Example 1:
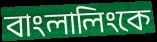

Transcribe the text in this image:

বাংলালিংকে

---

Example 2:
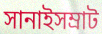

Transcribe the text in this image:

সানাইসম্রাট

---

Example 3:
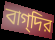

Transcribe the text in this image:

বাগ্‌দির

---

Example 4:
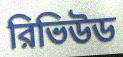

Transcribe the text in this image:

রিভিউড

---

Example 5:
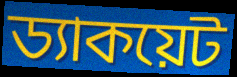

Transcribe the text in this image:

ড্যাকয়েট